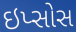
ઇપ્સોસ